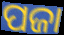
ପଜା